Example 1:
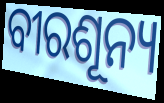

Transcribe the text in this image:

ବୀରଶୂନ୍ୟ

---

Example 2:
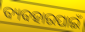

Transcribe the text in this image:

ବ୍ୟବହାରପାଇଁ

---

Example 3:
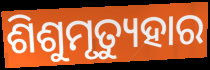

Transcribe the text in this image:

ଶିଶୁମୃତ୍ୟୁହାର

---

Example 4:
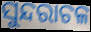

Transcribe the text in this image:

ସୁନ୍ଦରାଚଳ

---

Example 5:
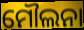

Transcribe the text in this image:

ମୌଲନା